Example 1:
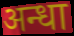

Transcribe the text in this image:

अन्धा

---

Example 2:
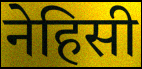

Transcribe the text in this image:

नेहिसी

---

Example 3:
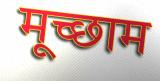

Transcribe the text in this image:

मूच्छाम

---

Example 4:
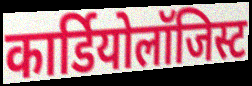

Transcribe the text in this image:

कार्डियोलॉजिस्ट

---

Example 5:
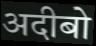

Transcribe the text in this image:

अदीबो